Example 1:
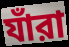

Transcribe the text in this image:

যাঁরা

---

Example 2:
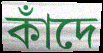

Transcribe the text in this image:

কাঁদে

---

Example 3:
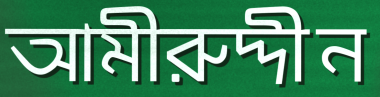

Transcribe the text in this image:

আমীরুদ্দীন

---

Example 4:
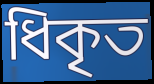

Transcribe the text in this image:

ধিকৃত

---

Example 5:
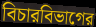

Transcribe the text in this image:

বিচারবিভাগের